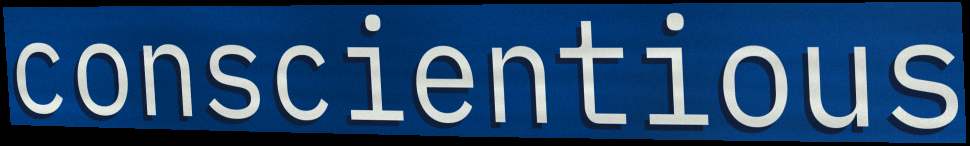
conscientious